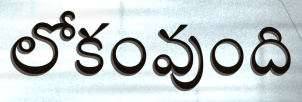
లోకంవుంది